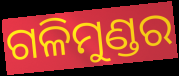
ଗଳିମୁଣ୍ଡର